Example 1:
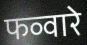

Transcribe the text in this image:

फव्‍वारे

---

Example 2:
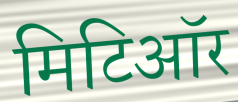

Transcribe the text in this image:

मिटिऑर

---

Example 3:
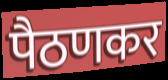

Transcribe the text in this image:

पैठणकर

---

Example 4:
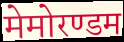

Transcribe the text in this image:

मेमोरण्डम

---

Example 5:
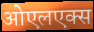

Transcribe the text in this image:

ओएलएक्स